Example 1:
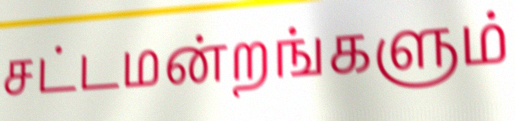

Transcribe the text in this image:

சட்டமன்றங்களும்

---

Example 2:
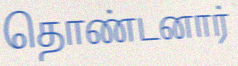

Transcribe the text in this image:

தொண்டனார்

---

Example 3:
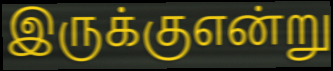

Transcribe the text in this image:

இருக்குஎன்று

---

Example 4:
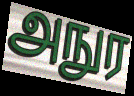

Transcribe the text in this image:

அநுர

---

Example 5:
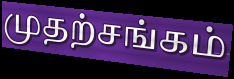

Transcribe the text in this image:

முதற்சங்கம்